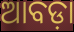
ଆବଡ଼ା